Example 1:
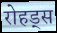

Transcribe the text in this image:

रोहड्स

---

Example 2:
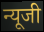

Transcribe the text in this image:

न्यूजी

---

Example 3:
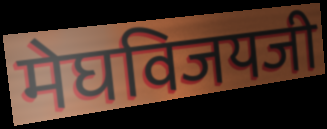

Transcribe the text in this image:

मेघविजयजी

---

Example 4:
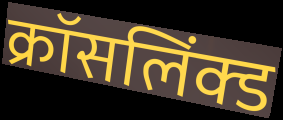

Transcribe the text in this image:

क्रॉसलिंक्ड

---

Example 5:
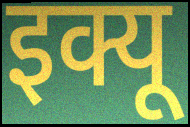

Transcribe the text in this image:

इक्यू